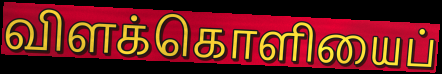
விளக்கொளியைப்